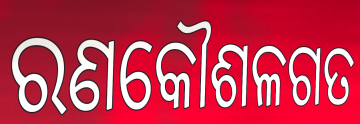
ରଣକୌଶଳଗତ